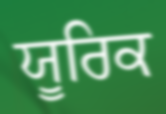
ਯੂਰਿਕ